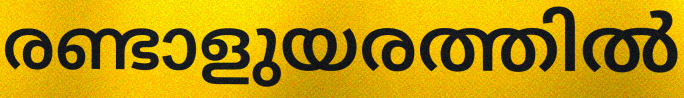
രണ്ടാളുയരത്തിൽ